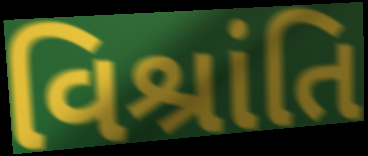
વિશ્રાંતિ